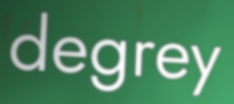
degrey